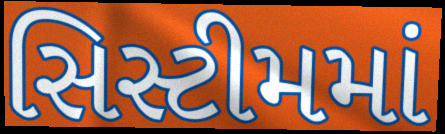
સિસ્ટીમમાં